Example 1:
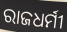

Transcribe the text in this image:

ରାଜଧର୍ମୀ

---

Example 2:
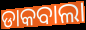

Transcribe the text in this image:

ଡାକବାଲା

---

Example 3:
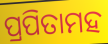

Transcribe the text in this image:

ପ୍ରପିତାମହ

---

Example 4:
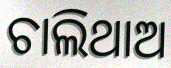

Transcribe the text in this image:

ଚାଲିଥାଅ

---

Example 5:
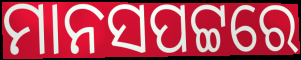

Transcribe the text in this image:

ମାନସପଟ୍ଟରେ